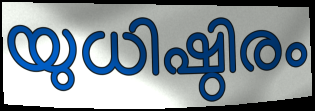
യുധിഷ്ഠിരം